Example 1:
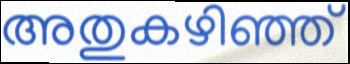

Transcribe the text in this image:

അതുകഴിഞ്ഞ്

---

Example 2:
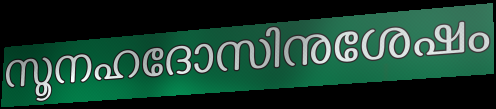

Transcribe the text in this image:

സൂനഹദോസിനുശേഷം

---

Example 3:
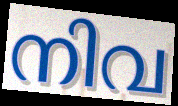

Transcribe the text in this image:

നിവ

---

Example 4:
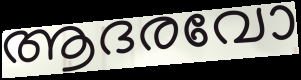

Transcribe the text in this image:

ആദരവോ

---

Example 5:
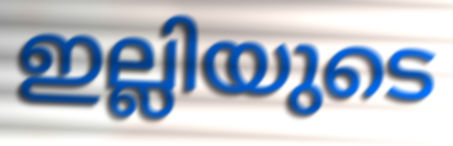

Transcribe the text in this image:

ഇല്ലിയുടെ